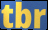
tbr